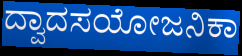
ದ್ವಾದಸಯೋಜನಿಕಾ